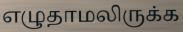
எழுதாமலிருக்க